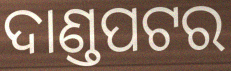
ଦାଣ୍ଡପଟର